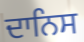
ਦਾਨਿਸ